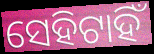
ସେହିଟାହିଁ